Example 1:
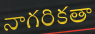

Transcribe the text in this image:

నాగరికతా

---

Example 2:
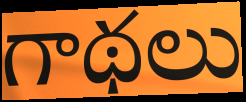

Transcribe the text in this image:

గాథలు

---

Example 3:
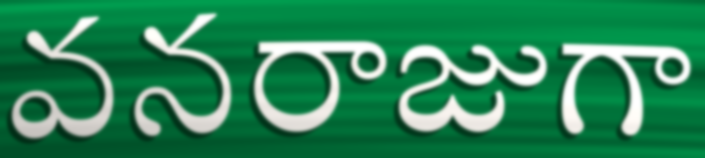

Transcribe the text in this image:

వనరాజుగా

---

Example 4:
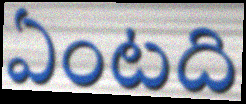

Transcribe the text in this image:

ఏంటది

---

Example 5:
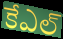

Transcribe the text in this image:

కేఎల్